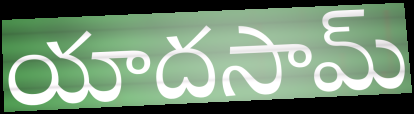
యాదసామ్